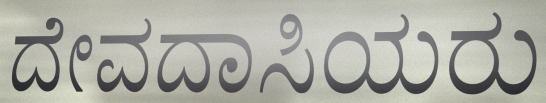
ದೇವದಾಸಿಯರು